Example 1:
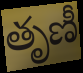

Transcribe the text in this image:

తృణీ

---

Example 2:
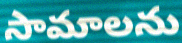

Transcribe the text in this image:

సామాలను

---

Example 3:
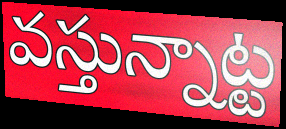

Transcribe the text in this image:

వస్తున్నాట్ట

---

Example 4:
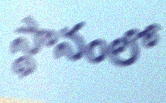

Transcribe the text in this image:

స్థానంలో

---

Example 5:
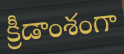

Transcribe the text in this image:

క్రీడాంశంగా